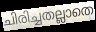
ചിരിച്ചതല്ലാതെ